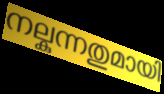
നല്കുന്നതുമായി